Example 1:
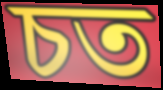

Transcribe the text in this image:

চত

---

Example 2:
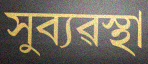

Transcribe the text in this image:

সুব্যৱস্থা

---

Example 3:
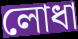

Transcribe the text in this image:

লোধা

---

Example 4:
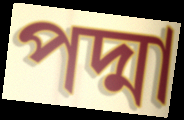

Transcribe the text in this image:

পদ্মা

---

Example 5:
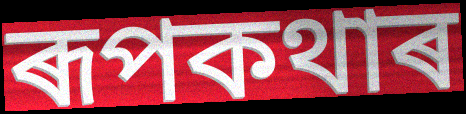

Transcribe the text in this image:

ৰূপকথাৰ